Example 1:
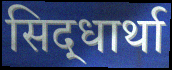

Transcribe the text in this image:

सिद्धार्था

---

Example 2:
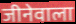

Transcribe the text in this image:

जीनेवाला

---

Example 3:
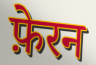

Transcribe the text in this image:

फ़ेरन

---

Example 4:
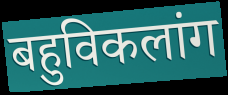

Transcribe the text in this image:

बहुविकलांग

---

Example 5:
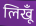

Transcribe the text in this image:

लिखूँ